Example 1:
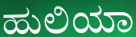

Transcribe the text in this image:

ಹುಲಿಯಾ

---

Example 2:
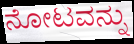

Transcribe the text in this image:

ನೋಟವನ್ನು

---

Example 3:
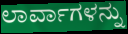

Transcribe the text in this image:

ಲಾರ್ವಾಗಳನ್ನು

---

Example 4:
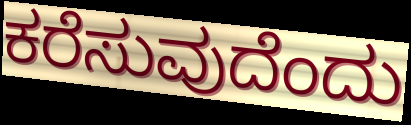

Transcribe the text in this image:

ಕರೆಸುವುದೆಂದು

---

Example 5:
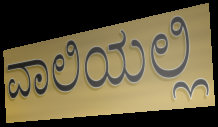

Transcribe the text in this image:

ವಾಲಿಯಲ್ಲಿ